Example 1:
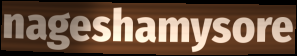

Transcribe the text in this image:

nageshamysore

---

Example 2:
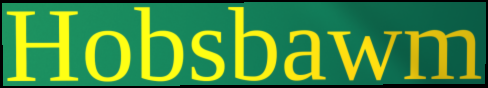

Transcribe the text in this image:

Hobsbawm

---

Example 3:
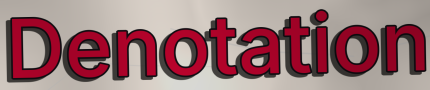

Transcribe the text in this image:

Denotation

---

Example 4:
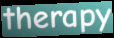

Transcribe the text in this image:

therapy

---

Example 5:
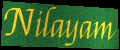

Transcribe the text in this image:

Nilayam